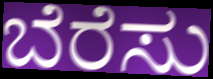
ಬೆರೆಸು